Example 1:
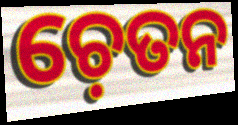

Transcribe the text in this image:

ଚ଼େତନ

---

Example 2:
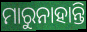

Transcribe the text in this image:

ମାରୁନାହାନ୍ତି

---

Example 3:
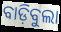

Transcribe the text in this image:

ବାଡ଼ିବୁଲା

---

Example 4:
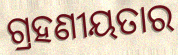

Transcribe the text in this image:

ଗ୍ରହଣୀୟତାର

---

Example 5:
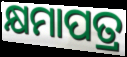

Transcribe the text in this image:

କ୍ଷମାପତ୍ର